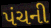
પંચની